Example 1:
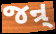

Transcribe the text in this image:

જન્ર્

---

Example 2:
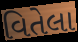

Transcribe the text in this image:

વિતેલા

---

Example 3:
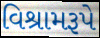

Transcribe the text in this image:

વિશ્રામરૂપે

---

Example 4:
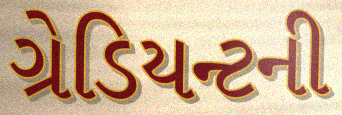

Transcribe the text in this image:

ગ્રેડિયન્ટની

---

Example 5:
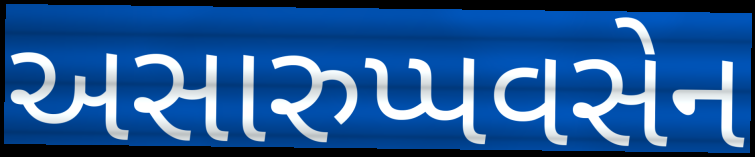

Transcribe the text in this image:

અસારુપ્પવસેન